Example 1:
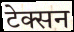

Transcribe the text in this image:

टेक्सन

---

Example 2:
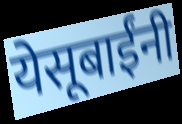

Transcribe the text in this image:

येसूबाईंनी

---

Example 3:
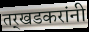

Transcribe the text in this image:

तर्खडकरांनी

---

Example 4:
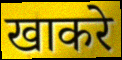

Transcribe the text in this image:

खाकरे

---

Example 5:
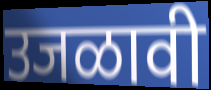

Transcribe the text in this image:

उजळावी